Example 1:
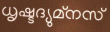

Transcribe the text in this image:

ധൃഷ്ടദ്യുമ്നസ്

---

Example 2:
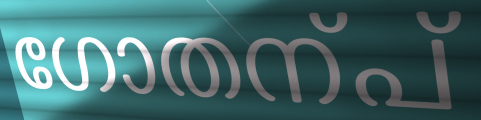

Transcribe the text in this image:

ഗോതന്പ്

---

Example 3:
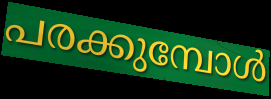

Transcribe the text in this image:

പരക്കുമ്പോൾ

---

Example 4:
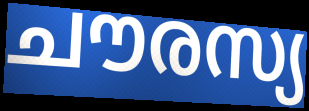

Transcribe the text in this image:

ചൗരസ്യ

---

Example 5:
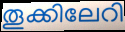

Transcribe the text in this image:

തൂക്കിലേറി